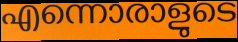
എന്നൊരാളുടെ